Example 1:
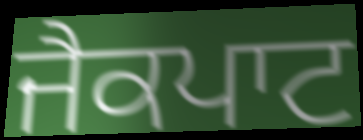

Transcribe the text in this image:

ਜੈਕਪਾਟ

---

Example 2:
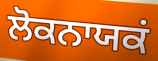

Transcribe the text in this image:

ਲੋਕਨਾਯਕਂ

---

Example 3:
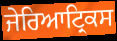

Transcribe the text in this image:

ਜੇਰਿਆਟ੍ਰਿਕਸ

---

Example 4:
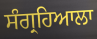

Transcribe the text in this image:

ਸੰਗ੍ਰਹਿਆਲਾ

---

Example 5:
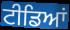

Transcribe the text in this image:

ਟੀਡਿਆਂ